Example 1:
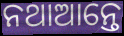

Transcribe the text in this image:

ନଥାଆନ୍ତେ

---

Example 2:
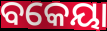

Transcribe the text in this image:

ବକେୟା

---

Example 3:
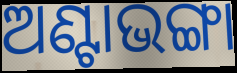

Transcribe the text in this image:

ଅଣ୍ଟାଭଙ୍ଗା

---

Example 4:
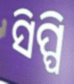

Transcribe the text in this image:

ସିପ୍ପି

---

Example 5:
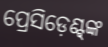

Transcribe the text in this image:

ପ୍ରେସିଡ଼େଣ୍ଟ୍‍ଙ୍କ